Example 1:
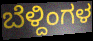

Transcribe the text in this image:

ಬೆಳ್ದಿಂಗಳ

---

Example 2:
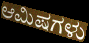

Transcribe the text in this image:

ಆಮಿಷಗಳು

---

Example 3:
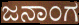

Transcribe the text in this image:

ಜನಾಂಗ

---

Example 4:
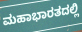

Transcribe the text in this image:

ಮಹಾಭಾರತದಲ್ಲಿ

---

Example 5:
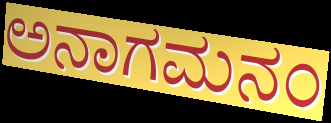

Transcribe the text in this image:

ಅನಾಗಮನಂ